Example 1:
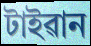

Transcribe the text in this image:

টাইৱান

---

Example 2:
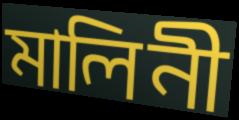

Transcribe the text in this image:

মালিনী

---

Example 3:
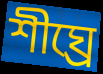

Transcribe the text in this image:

শীঘ্ৰে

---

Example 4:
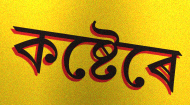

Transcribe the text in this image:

কষ্টেৰে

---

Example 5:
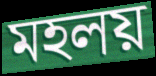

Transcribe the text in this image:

মহলয়